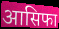
आसिफा